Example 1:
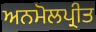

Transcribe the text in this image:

ਅਨਮੋਲਪ੍ਰੀਤ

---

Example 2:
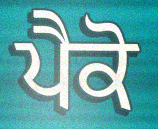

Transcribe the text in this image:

ਪੈਕੋ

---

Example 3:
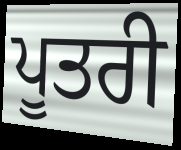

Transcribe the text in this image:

ਪੂਤਰੀ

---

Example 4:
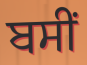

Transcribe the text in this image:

ਬਸੀਂ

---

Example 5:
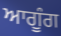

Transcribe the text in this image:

ਆਗੂੰਗ